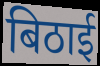
बिठाई